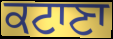
ਕਟਾਣਾ